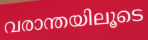
വരാന്തയിലൂടെ